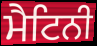
ਮੈਟਿਨੀ